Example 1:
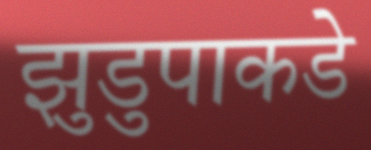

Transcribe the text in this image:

झुडुपाकडे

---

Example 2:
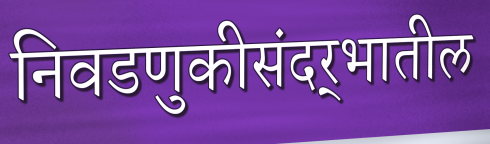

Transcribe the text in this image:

निवडणुकीसंदर्भातील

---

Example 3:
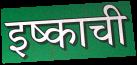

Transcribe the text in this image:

इष्काची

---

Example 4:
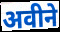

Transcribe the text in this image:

अवीने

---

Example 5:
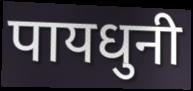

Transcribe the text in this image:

पायधुनी